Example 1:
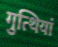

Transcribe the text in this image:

गुत्थियां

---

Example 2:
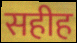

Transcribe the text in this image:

सहीह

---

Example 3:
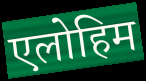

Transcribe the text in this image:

एलोहिम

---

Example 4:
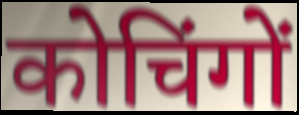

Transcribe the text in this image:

कोचिंगों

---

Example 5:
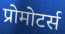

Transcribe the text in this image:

प्रोमोटर्स